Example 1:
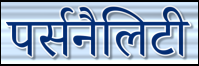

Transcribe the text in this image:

पर्सनैलिटी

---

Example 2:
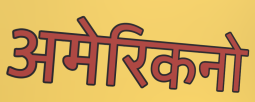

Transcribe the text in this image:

अमेरिकनो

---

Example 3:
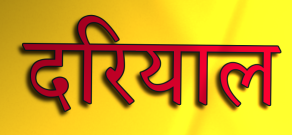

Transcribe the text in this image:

दरियाल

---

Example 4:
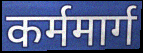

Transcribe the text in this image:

कर्ममार्ग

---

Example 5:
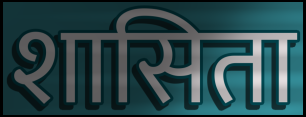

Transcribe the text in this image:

शासिता